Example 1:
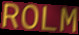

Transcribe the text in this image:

ROLM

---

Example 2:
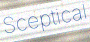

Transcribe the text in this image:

Sceptical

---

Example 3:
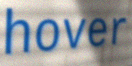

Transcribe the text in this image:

hover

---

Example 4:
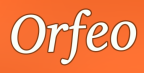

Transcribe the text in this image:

Orfeo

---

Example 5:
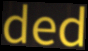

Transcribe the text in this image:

ded